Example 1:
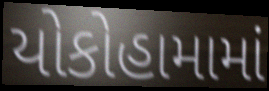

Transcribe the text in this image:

યોકોહામામાં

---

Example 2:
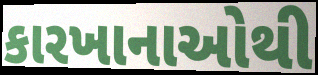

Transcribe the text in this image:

કારખાનાઓથી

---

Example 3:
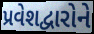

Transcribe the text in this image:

પ્રવેશદ્વારોને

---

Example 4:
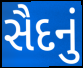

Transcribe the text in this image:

સૈદનું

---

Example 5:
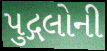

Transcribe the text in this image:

પુદ્ગલોની